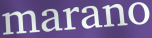
marano